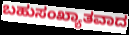
ಬಹುಸಂಖ್ಯಾತವಾದ